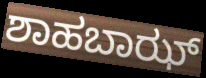
ಶಾಹಬಾಝ್